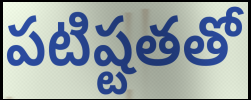
పటిష్టతతో